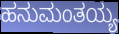
ಹನುಮಂತಯ್ಯ